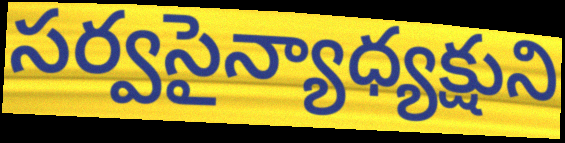
సర్వసైన్యాధ్యక్షుని